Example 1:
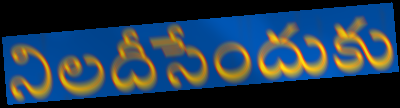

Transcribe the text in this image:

నిలదీసేందుకు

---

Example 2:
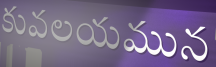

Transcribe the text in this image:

కువలయమున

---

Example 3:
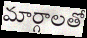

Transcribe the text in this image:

మార్గాలతో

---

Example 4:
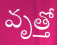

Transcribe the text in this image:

వృత్తో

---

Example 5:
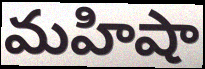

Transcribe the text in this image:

మహిషా